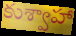
కుశ్వాహా